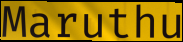
Maruthu